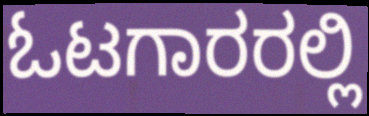
ಓಟಗಾರರಲ್ಲಿ